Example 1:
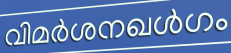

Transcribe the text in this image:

വിമർശനഖൾഗം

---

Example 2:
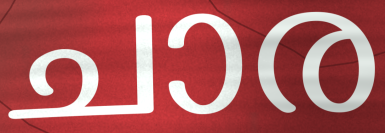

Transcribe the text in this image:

ചാര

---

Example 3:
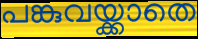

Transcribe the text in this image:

പങ്കുവയ്ക്കാതെ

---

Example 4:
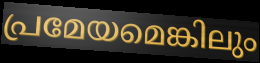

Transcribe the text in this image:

പ്രമേയമെങ്കിലും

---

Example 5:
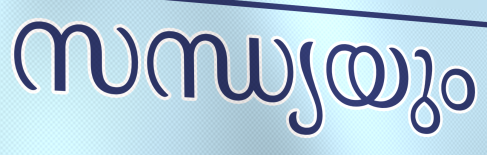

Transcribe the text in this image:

സന്ധ്യയും